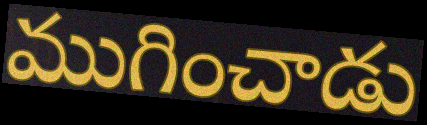
ముగించాడు